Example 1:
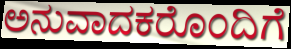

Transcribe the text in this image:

ಅನುವಾದಕರೊಂದಿಗೆ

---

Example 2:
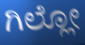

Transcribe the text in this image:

ಗಿಲ್ಲೋ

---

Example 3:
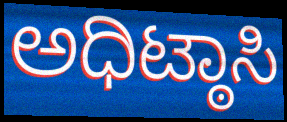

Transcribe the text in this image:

ಅಧಿಟ್ಠಾಸಿ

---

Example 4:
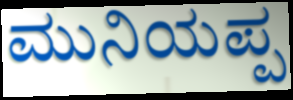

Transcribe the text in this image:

ಮುನಿಯಪ್ಪ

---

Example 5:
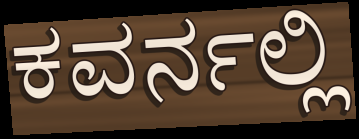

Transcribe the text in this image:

ಕವರ್ನಲ್ಲಿ